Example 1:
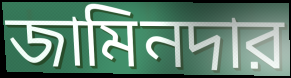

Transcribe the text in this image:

জামিনদার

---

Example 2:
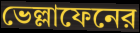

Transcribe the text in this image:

ভেল্লাফেনের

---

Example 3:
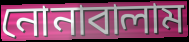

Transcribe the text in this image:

নোনাবালাম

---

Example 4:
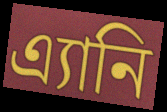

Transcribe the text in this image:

এ্যানি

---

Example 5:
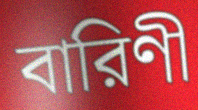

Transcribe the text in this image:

বারিণী